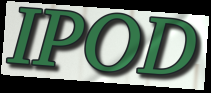
IPOD